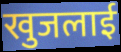
खुजलाई